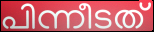
പിന്നീടത്